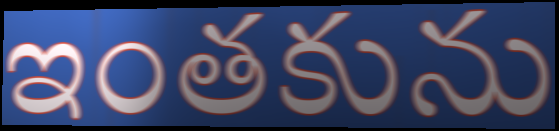
ఇంతకును